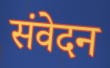
संवेदन